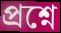
প্ৰশ্নে